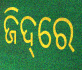
ଜିଦ୍‌ରେ